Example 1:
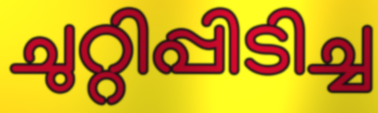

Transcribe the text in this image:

ചുറ്റിപ്പിടിച്ച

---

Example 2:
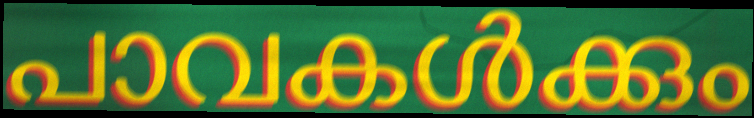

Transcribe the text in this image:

പാവകൾക്കും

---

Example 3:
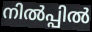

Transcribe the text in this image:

നിൽപ്പിൽ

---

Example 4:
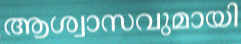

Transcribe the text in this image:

ആശ്വാസവുമായി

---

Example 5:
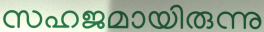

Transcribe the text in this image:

സഹജമായിരുന്നു